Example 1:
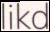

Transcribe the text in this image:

likd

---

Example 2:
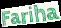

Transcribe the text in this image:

Fariha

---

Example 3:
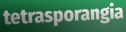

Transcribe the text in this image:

tetrasporangia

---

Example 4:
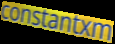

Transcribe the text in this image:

constantxm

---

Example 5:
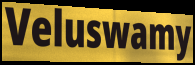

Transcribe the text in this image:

Veluswamy